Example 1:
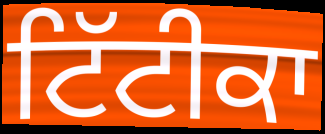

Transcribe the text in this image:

ਟਿੱਟੀਕਾ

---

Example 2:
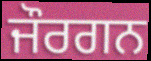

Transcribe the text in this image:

ਜੌਰਗਨ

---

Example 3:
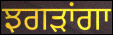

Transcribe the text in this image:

ਝਗੜਾਂਗਾ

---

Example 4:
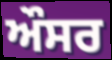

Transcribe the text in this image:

ਔਸਰ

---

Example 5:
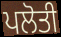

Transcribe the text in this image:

ਪਲੋਤੀ